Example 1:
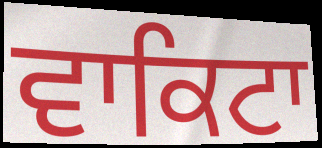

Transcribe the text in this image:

ਵਾਕਿਟਾ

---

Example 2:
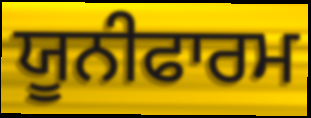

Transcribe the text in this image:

ਯੂਨੀਫਾਰਮ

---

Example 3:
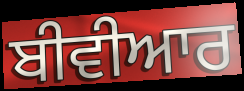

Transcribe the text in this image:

ਬੀਵੀਆਰ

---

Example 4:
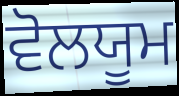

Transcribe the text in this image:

ਵੋਲਯੂਮ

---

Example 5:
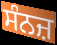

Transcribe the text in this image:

ਸੰਨਜ਼